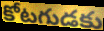
కోటగుడకు